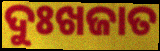
ଦୁଃଖଜାତ